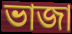
ভাজা